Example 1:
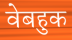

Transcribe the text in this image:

वेबहुक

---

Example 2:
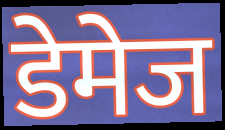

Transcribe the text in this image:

डेमेज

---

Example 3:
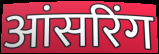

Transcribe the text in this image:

आंसरिंग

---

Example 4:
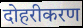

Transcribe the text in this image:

दोहरीकरण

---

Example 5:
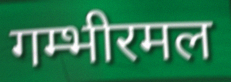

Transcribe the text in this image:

गम्भीरमल